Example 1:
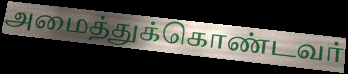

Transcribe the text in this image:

அமைத்துக்கொண்டவர்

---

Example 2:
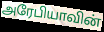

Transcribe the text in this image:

அரேபியாவின்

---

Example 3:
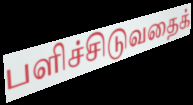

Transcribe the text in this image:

பளிச்சிடுவதைக்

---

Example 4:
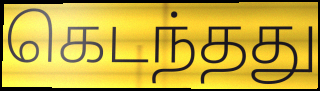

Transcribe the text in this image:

கெடந்தது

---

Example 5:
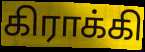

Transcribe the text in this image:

கிராக்கி